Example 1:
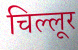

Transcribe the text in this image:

चिल्लूर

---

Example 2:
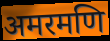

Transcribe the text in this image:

अमरमणि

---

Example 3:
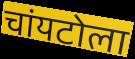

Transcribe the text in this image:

चांयटोला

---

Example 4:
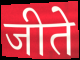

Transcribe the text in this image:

जीते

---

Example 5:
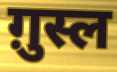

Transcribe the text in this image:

ग़ुस्ल